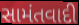
સામંતવાદી